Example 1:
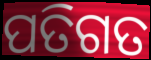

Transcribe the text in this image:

ପତିଗତ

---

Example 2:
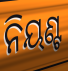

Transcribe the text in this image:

ନିୟଣ୍ଟ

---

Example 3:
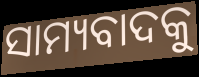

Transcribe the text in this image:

ସାମ୍ୟବାଦକୁ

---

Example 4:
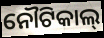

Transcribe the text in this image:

ନୌଟିକାଲ୍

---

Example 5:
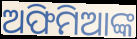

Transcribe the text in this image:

ଅଫିମିଆଙ୍କ